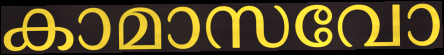
കാമാസവോ